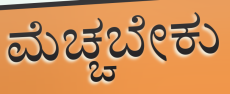
ಮೆಚ್ಚಬೇಕು